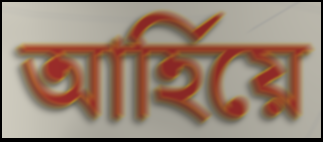
আৰ্হিয়ে